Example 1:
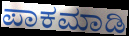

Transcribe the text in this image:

ಪಾಕಮಾಡಿ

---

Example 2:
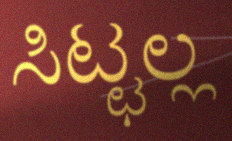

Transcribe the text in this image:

ಸಿಟ್ಟಲ್ಲ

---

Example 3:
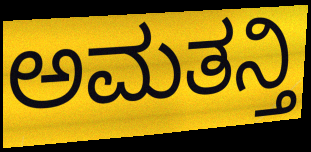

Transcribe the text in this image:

ಅಮತನ್ತಿ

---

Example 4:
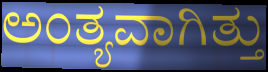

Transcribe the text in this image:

ಅಂತ್ಯವಾಗಿತ್ತು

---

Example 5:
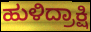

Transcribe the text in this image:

ಹುಳಿದ್ರಾಕ್ಷಿ